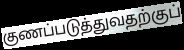
குணப்படுத்துவதற்குப்